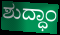
ಶುದ್ಧಾಂ